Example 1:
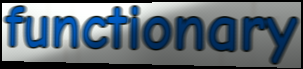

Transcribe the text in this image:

functionary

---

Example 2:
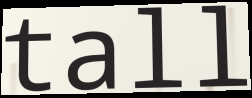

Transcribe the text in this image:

tall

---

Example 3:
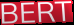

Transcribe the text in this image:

BERT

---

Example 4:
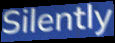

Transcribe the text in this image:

Silently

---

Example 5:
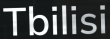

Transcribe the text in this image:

Tbilisi